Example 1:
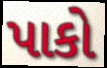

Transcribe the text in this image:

પાકો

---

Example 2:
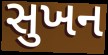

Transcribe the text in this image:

સુખન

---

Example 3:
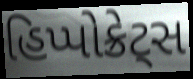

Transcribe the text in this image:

હિપ્પોક્રેટ્સ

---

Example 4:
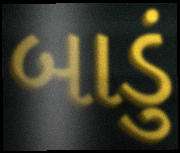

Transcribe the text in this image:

બાડું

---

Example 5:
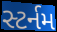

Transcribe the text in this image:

સ્ટર્નમ